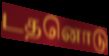
டதனொடு